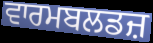
ਵਾਰਮਬਲਡਜ਼